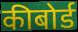
कीबोर्ड